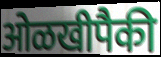
ओळखीपैकी